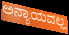
ಅನ್ಯಾಯವಲ್ಲ